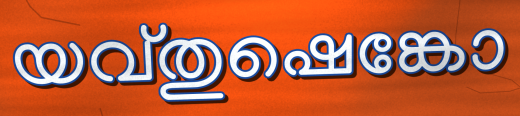
യവ്തുഷെങ്കോ